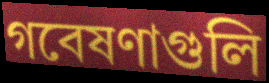
গবেষণাগুলি